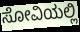
ಸೋವಿಯಲ್ಲಿ